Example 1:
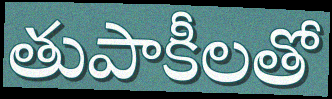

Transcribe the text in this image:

తుపాకీలతో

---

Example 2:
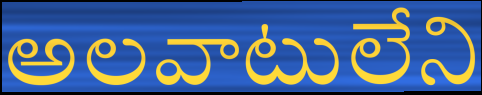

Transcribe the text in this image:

అలవాటులేని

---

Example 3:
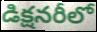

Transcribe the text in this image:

డిక్షనరీలో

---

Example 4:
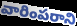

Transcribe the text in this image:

వారింపరాని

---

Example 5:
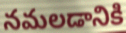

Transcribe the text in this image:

నమలడానికి